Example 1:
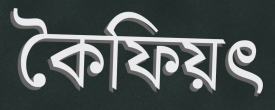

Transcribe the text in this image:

কৈফিয়ৎ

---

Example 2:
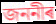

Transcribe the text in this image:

জননীৰ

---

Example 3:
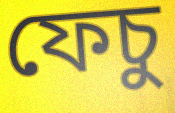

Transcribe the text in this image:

ফেচু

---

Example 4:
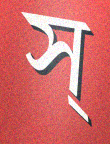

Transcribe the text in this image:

স্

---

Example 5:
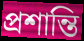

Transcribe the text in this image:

প্ৰশান্তি